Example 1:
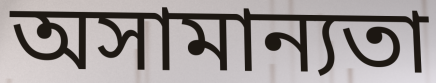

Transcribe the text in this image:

অসামান্যতা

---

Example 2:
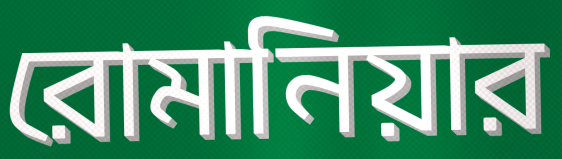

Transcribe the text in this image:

রোমানিয়ার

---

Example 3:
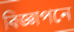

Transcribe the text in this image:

বিজ্ঞাপনে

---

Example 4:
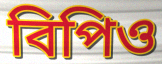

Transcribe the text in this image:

বিপিও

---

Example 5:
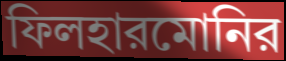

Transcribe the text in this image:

ফিলহারমোনির